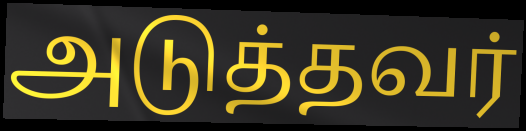
அடுத்தவர்